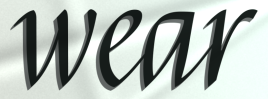
wear